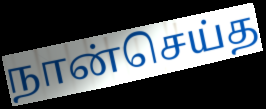
நான்செய்த